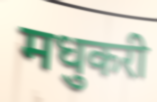
मधुकरी